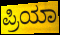
ಪ್ರಿಯಾ